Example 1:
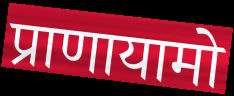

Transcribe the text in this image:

प्राणायामो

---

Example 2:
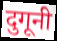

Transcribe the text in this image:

दुगूनी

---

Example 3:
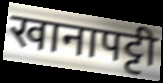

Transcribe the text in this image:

खानापट्टी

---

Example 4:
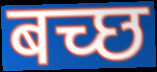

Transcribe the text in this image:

बच्छ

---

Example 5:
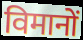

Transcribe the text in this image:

विमानों